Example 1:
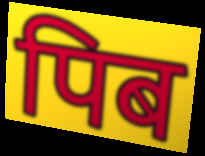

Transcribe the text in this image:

पिब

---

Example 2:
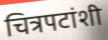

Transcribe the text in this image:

चित्रपटांशी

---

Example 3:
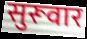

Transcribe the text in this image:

सुरूवार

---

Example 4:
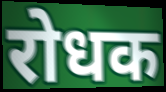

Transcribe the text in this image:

रोधक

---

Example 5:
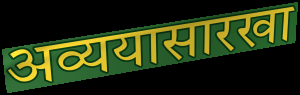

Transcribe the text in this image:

अव्ययासारखा